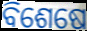
ବିଶେଷେ